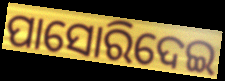
ପାସୋରିଦେଇ